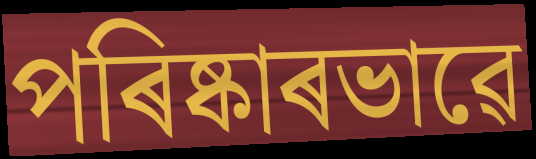
পৰিষ্কাৰভাৱে